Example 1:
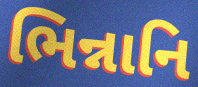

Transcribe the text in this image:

ભિન્નાનિ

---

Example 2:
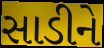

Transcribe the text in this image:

સાડીને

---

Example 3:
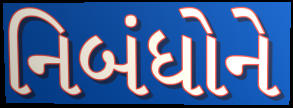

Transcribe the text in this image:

નિબંધોને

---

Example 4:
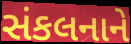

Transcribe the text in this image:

સંકલનાને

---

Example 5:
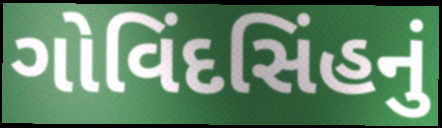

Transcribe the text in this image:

ગોવિંદસિંહનું